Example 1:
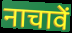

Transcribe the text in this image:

नाचावें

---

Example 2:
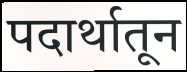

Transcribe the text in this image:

पदार्थातून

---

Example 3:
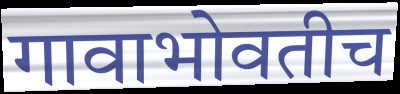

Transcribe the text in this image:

गावाभोवतीच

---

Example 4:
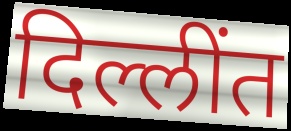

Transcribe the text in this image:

दिल्लींत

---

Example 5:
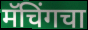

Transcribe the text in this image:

मॅचिंगचा